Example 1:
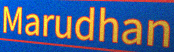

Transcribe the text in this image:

Marudhan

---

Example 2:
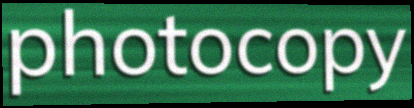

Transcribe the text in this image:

photocopy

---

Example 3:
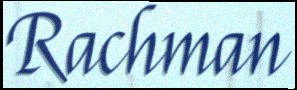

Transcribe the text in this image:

Rachman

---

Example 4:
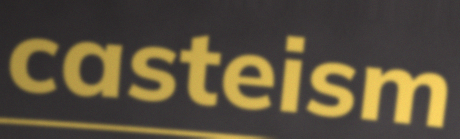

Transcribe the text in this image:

casteism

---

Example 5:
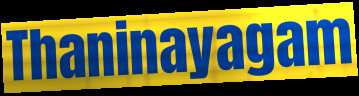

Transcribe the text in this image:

Thaninayagam